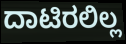
ದಾಟಿರಲಿಲ್ಲ